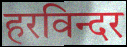
हरविन्दर